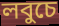
লবুচে